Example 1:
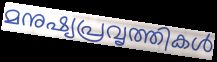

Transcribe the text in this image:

മനുഷ്യപ്രവൃത്തികൾ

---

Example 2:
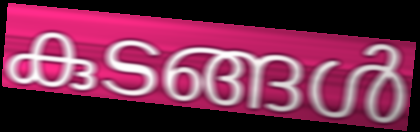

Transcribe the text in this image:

കുടങ്ങൾ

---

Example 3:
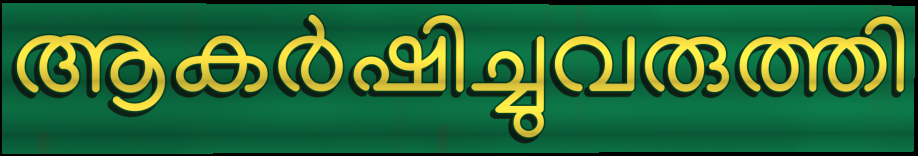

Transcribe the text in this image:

ആകർഷിച്ചുവരുത്തി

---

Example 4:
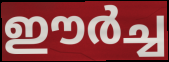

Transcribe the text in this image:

ഈർച്ച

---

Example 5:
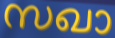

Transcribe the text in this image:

സഖാ